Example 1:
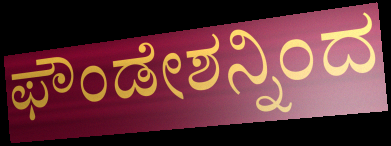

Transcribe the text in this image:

ಫೌಂಡೇಶನ್ನಿಂದ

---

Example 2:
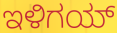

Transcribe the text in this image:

ಇಳಿಗಯ್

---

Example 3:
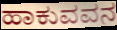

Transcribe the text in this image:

ಹಾಕುವವನ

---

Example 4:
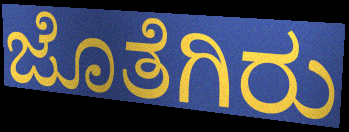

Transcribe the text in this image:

ಜೊತೆಗಿರು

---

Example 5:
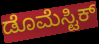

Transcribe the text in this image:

ಡೊಮೆಸ್ಟಿಕ್